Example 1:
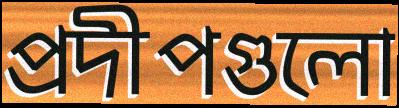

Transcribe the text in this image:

প্রদীপগুলো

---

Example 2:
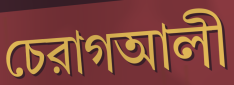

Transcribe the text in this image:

চেরাগআলী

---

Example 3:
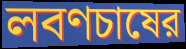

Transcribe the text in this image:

লবণচাষের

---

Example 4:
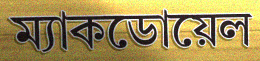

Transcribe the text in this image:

ম্যাকডোয়েল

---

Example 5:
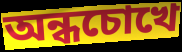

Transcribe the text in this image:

অন্ধচোখে